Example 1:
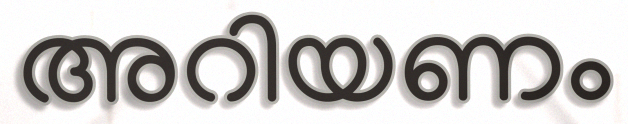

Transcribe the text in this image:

അറിയണം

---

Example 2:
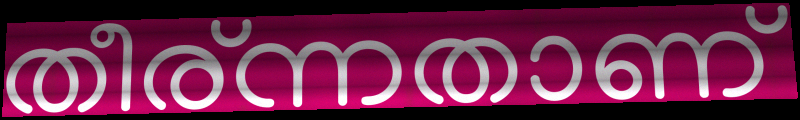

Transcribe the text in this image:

തീര്ന്നതാണ്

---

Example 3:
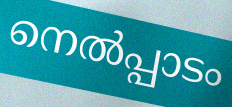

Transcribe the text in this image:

നെൽപ്പാടം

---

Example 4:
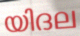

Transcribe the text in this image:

യിദല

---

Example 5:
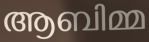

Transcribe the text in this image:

ആബിമ്മ